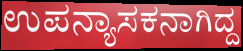
ಉಪನ್ಯಾಸಕನಾಗಿದ್ದ